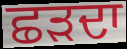
ਛੜਦਾ